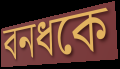
বনধকে